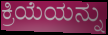
ಕ್ರಿಯೆಯನ್ನು